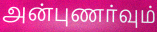
அன்புணர்வும்